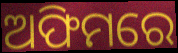
ଅଫିମରେ